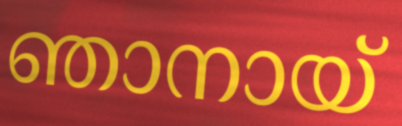
ഞാനായ്